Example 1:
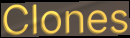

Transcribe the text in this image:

Clones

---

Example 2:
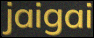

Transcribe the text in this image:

jaigai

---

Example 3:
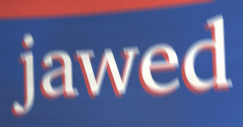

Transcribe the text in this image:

jawed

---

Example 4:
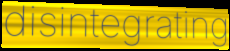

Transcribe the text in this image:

disintegrating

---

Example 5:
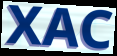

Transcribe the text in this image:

XAC